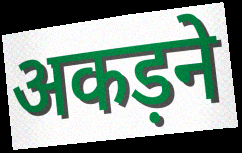
अकड़ने